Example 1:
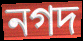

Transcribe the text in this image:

নগদ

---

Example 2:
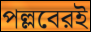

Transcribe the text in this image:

পল্লবেরই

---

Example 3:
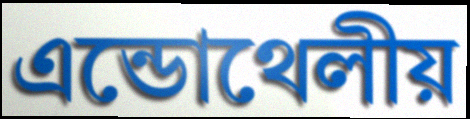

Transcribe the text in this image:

এন্ডোথেলীয়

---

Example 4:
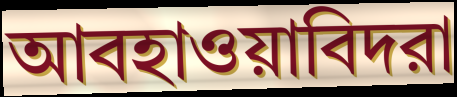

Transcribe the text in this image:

আবহাওয়াবিদরা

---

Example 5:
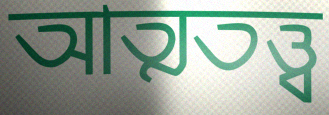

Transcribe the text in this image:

আত্মতত্ত্ব